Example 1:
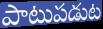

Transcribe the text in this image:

పాటుపడుట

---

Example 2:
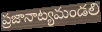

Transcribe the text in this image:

ప్రజానాట్యమండలి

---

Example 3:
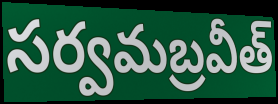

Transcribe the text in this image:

సర్వమబ్రవీత్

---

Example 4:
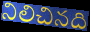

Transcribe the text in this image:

నిలిచినది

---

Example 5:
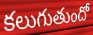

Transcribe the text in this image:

కలుగుతుందో